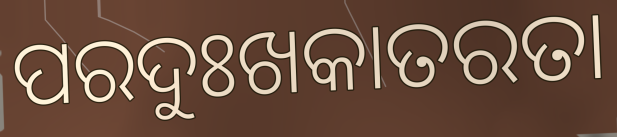
ପରଦୁଃଖକାତରତା